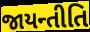
જાયન્તીતિ